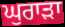
ਘੁਰਾੜਾ